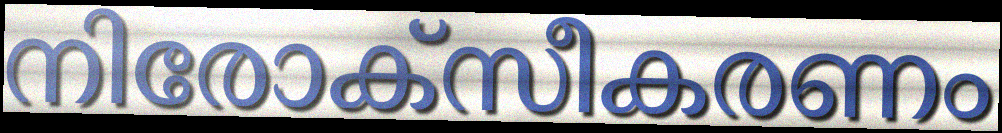
നിരോക്സീകരണം